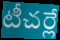
టీచర్లే